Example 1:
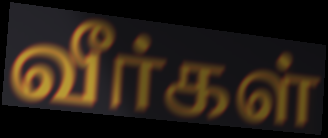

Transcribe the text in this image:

வீர்கள்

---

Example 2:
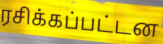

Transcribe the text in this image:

ரசிக்கப்பட்டன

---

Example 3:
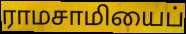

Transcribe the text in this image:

ராமசாமியைப்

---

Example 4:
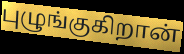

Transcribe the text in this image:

புழுங்குகிறான்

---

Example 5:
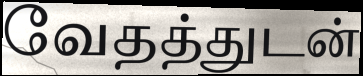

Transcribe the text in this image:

வேதத்துடன்